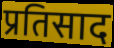
प्रतिसाद